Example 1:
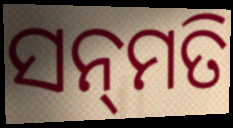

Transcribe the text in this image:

ସନ୍‌ମତି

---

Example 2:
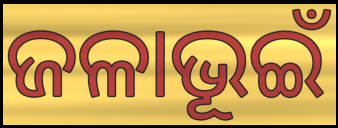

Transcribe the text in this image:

ଜଳାଭୂଇଁ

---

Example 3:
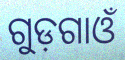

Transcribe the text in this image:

ଗୁଡ଼ଗାଓଁ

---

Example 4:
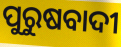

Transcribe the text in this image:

ପୁରୁଷବାଦୀ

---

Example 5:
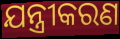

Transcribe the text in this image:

ଯନ୍ତ୍ରୀକରଣ